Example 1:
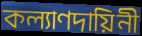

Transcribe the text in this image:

কল্যাণদায়িনী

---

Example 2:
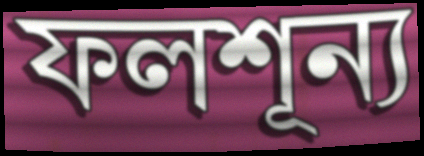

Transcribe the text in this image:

ফলশূন্য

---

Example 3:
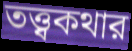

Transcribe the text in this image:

তত্ত্বকথার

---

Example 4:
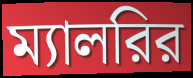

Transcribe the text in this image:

ম্যালরির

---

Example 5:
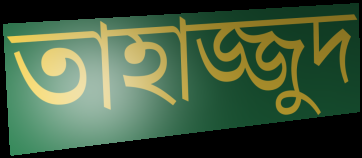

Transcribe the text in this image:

তাহাজ্জুদ